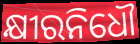
କ୍ଷୀରନିଧୌ